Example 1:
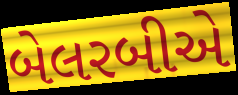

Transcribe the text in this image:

બેલરબીએ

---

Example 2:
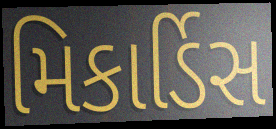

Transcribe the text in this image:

મિકાર્ડિસ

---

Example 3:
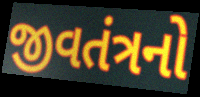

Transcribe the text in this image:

જીવતંત્રનો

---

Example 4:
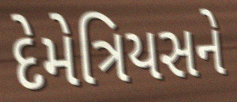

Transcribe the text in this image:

દેમેત્રિયસને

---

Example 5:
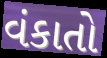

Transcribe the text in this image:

વંકાતો